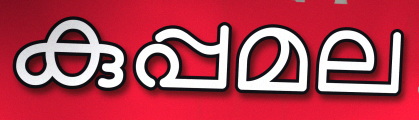
കുപ്പമല